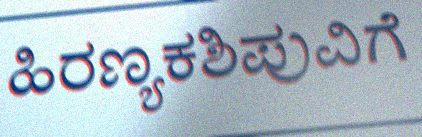
ಹಿರಣ್ಯಕಶಿಪುವಿಗೆ